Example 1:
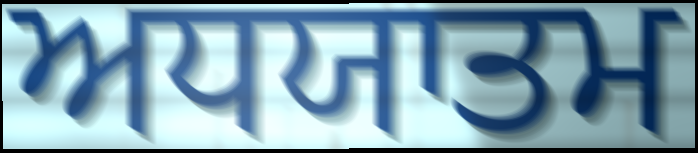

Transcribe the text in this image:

ਅਧਯਾਤਮ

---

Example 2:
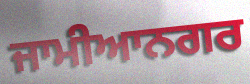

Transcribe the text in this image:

ਜਾਮੀਆਨਗਰ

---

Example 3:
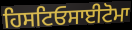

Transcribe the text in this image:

ਹਿਸਟਿਓਸਾਈਟੋਮਾ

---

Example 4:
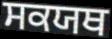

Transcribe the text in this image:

ਸਕਯਥ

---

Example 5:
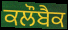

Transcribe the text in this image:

ਕਲੌਬੈਕ